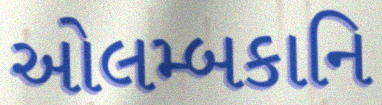
ઓલમ્બકાનિ